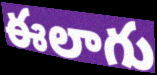
ఈలాగు